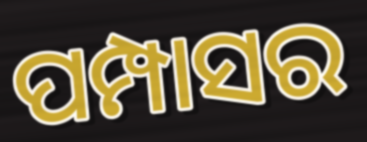
ପମ୍ପାସର